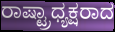
ರಾಷ್ಟ್ರಾಧ್ಯಕ್ಷರಾದ